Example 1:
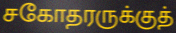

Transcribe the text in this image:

சகோதரருக்குத்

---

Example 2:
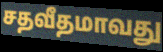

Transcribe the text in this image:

சதவீதமாவது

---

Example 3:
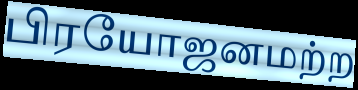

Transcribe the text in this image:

பிரயோஜனமற்ற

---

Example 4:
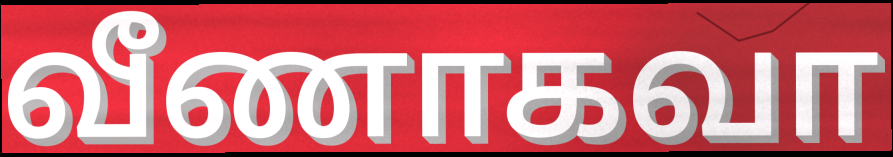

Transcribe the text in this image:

வீணாகவா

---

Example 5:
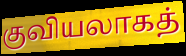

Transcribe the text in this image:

குவியலாகத்